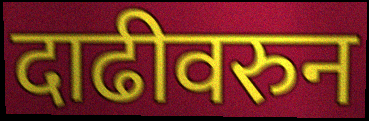
दाढीवरुन